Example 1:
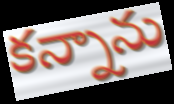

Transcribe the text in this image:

కన్నాను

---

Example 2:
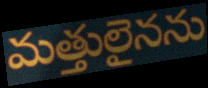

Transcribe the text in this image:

మత్తులైనను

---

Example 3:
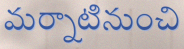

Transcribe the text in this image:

మర్నాటినుంచి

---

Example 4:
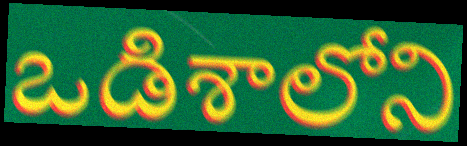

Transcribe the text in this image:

ఒడిశాలోని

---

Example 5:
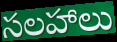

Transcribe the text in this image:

సలహాలు